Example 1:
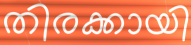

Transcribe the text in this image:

തിരക്കായി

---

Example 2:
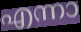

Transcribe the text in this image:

എന്നാ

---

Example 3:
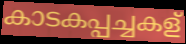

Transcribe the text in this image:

കാടകപ്പച്ചകള്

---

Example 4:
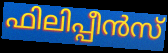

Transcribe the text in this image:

ഫിലിപ്പീൻസ്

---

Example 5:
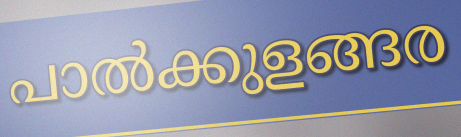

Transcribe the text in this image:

പാൽക്കുളങ്ങര